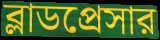
ব্লাডপ্রেসার